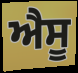
ਐਸੂ